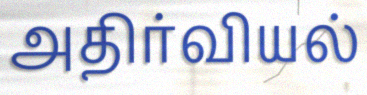
அதிர்வியல்